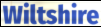
Wiltshire